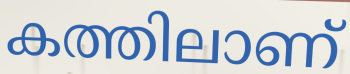
കത്തിലാണ്